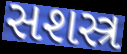
સશસ્ત્ર